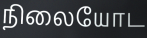
நிலையோட